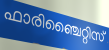
ഫാരിഞ്ചൈറ്റിസ്